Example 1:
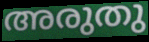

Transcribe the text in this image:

അരുതു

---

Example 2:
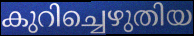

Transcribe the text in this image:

കുറിച്ചെഴുതിയ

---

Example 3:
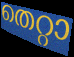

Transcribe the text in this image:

തെറ്റാ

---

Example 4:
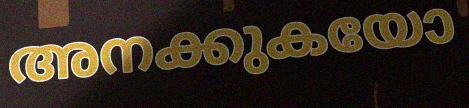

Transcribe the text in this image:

അനക്കുകയോ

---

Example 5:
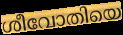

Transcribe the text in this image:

ശീവോതിയെ